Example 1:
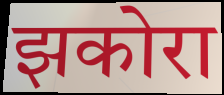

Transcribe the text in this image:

झकोरा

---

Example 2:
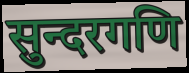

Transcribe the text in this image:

सुन्दरगणि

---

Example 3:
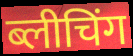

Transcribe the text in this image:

ब्‍लीचिंग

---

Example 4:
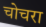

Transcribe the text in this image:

चोचरा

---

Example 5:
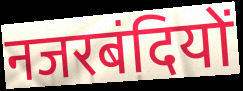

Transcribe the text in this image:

नजरबंदियों